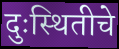
दुःस्थितीचे